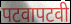
पटवापटवी